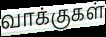
வாக்குகள்